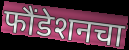
फौंडेशनचा